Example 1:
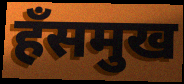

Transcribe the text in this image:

हँसमुख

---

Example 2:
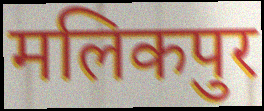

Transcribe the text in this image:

मलिकपुर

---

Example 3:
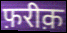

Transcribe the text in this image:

फ़रीक़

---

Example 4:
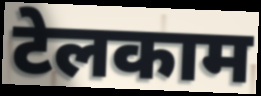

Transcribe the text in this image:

टेलकाम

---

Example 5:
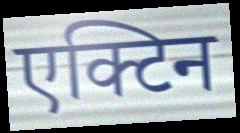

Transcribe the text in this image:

एक्टिन